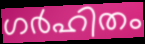
ഗർഹിതം